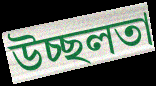
উচ্ছলতা